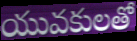
యువకులతో